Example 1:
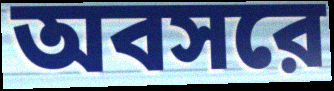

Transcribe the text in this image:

অবসরে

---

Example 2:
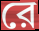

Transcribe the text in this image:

রে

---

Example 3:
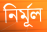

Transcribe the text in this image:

নির্মূল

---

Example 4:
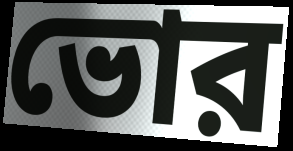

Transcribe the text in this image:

ভোর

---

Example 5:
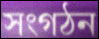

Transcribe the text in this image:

সংগঠন